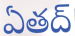
ఏతద్